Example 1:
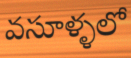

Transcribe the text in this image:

వసూళ్ళలో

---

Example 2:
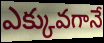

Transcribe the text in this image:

ఎక్కువగానే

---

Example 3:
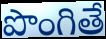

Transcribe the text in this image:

పొంగితే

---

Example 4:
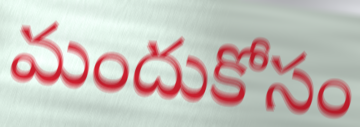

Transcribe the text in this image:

మందుకోసం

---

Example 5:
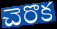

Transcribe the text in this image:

చెరొక